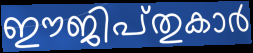
ഈജിപ്‌തുകാർ